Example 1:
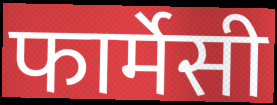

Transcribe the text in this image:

फार्मेसी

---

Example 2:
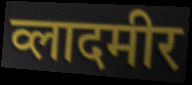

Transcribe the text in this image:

व्लादमीर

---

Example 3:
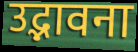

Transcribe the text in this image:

उद्भावना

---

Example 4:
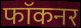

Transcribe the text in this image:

फॉकनर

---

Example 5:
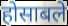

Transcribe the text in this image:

होसाबले